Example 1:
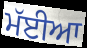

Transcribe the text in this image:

ਮੱਈਆ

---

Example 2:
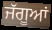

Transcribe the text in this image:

ਜੱਗੂਆਂ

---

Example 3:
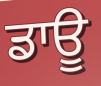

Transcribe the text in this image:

ਡਾਊ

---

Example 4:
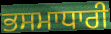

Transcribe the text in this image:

ਭਸਮਾਧਾਰੀ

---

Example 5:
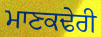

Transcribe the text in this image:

ਮਾਣਕਢੇਰੀ